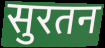
सुरतन